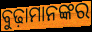
ବୁଢ଼ାମାନଙ୍କର